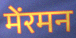
मेंरमन